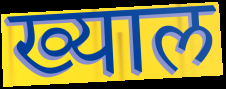
ख्याल